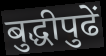
बुद्धीपुढें